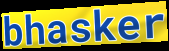
bhasker